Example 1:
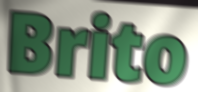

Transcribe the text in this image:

Brito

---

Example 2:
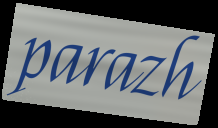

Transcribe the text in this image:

parazh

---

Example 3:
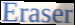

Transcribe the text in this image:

Eraser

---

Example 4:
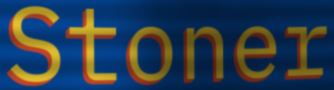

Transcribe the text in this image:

Stoner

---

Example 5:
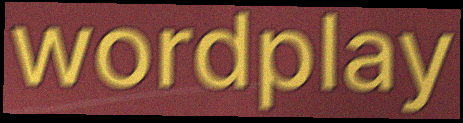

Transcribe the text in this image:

wordplay